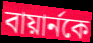
বায়ার্নকে